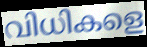
വിധികളെ